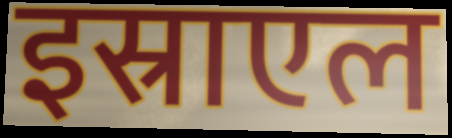
इस्राएल